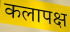
कलापक्ष